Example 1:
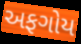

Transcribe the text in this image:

અફગોય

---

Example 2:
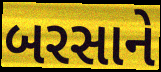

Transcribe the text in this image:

બરસાને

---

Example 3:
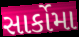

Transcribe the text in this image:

સાર્કોમા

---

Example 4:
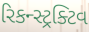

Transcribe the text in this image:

રિકન્સ્ટ્રક્ટિવ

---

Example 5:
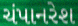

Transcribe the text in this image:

ચંપાનરેશ